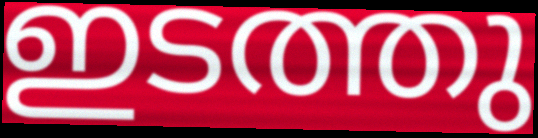
ഇടത്തു